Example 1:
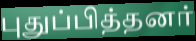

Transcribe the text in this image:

புதுப்பித்தனர்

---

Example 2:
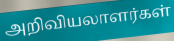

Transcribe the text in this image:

அறிவியலாளர்கள்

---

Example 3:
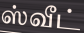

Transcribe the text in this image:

ஸ்வீட்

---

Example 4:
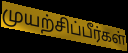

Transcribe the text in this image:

முயற்சிப்பீர்கள்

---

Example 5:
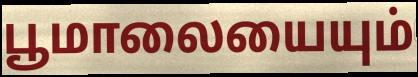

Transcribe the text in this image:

பூமாலையையும்